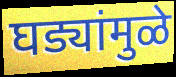
घड्यांमुळे